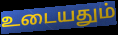
உடையதும்